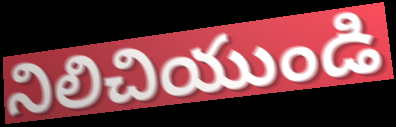
నిలిచియుండి